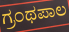
ಗ್ರಂಥಪಾಲ